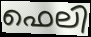
ഫെലി